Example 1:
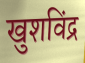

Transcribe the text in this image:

खुशविंद्र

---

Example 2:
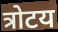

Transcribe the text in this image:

त्रोटय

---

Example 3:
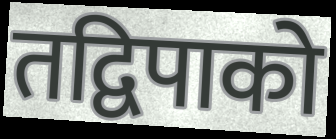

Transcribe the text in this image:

तद्विपाको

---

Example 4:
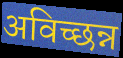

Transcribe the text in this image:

अविच्छन्न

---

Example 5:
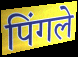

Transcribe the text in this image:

पिंगले